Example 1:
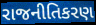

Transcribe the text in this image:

રાજનીતિકરણ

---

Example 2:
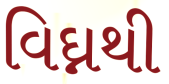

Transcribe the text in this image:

વિઘ્નથી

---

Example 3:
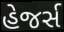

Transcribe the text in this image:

હેજર્સ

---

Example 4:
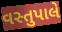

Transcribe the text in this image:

વસ્તુપાલે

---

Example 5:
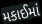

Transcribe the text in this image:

મકાઈમાં